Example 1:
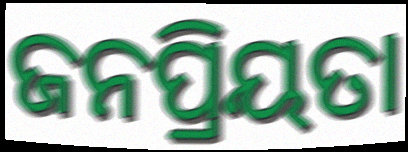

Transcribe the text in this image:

ଜନପ୍ରିୟତା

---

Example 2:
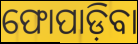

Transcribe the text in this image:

ଫୋପାଡ଼ିବା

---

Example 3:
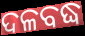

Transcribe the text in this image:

ଦଳବଦ୍ଧ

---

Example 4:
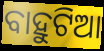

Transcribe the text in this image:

ବାହୁଟିଆ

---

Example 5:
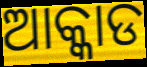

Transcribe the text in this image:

ଆକ୍କାଡ